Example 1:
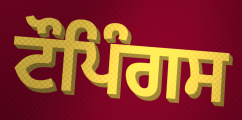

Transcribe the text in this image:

ਟੌਪਿੰਗਸ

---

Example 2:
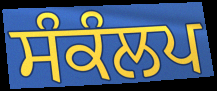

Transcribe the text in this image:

ਸੰਕੰਲਪ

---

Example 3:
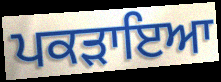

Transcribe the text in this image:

ਪਕੜਾਇਆ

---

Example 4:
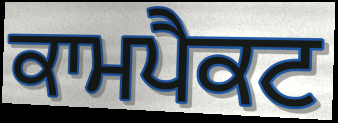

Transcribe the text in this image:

ਕਾਮਪੈਕਟ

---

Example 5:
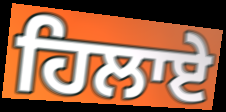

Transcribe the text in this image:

ਹਿਲਾਏ